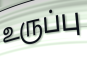
உருப்பு